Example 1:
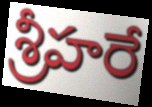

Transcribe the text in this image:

శ్రీహరే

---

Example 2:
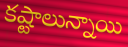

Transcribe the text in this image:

కష్టాలున్నాయి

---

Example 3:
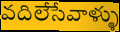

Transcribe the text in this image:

వదిలేసేవాళ్ళు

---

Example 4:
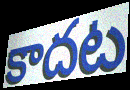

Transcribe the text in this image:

కాదట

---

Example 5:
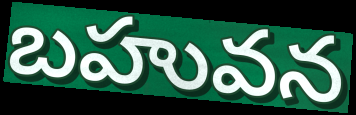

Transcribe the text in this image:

బహువన